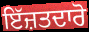
ਇੱਜ਼ਤਦਾਰੋ